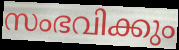
സംഭവിക്കും